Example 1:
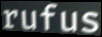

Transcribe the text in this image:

rufus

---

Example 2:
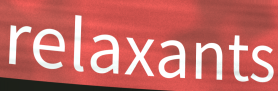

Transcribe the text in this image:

relaxants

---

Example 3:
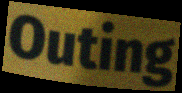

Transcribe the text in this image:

Outing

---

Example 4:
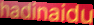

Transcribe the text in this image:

hadinaidu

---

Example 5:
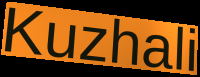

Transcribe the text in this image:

Kuzhali